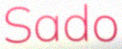
Sado